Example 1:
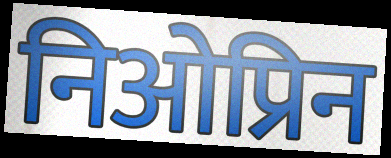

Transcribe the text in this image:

निओप्रिन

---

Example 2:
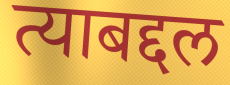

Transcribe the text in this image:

त्याबद्दल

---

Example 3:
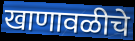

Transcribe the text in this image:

खाणावळीचे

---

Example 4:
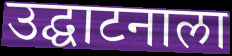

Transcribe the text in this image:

उद्घाटनाला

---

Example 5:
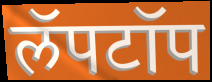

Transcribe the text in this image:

लॅपटॉप